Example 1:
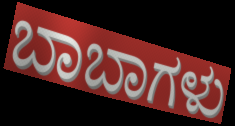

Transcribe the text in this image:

ಬಾಬಾಗಳು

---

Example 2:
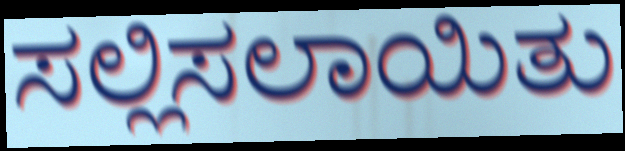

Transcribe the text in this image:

ಸಲ್ಲಿಸಲಾಯಿತು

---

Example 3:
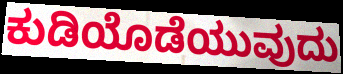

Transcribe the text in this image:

ಕುಡಿಯೊಡೆಯುವುದು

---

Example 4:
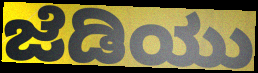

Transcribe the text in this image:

ಜೆಡಿಯು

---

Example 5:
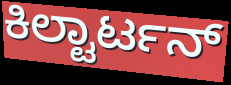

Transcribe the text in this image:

ಕಿಲ್ಟಾರ್ಟನ್